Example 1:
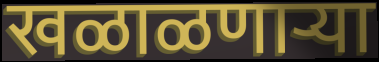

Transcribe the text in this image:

खळाळणाऱ्या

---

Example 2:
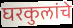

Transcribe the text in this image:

घरकुलांचे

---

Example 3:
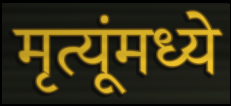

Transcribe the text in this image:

मृत्यूंमध्ये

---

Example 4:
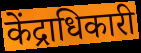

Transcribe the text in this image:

केंद्राधिकारी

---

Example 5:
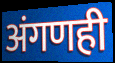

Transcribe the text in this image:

अंगणही